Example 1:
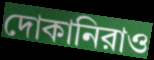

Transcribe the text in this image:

দোকানিরাও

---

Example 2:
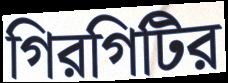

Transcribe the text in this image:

গিরগিটির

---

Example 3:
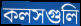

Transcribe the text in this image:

কলসগুলি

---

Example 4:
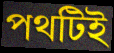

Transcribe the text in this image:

পথটিই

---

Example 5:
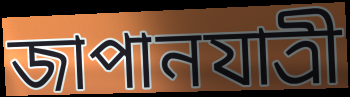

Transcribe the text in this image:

জাপানযাত্রী